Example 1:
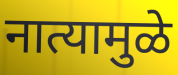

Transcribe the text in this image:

नात्यामुळे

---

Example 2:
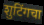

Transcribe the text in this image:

शुटिंगचा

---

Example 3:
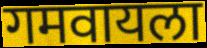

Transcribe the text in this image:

गमवायला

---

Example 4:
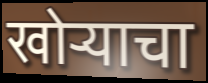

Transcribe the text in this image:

खोऱ्याचा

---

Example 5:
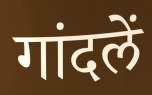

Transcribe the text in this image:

गांदलें